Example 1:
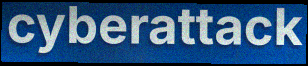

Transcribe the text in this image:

cyberattack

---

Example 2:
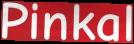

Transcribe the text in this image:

Pinkal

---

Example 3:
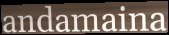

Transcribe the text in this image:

andamaina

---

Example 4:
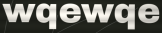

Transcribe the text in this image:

wqewqe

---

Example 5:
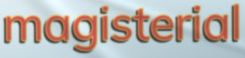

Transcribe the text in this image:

magisterial